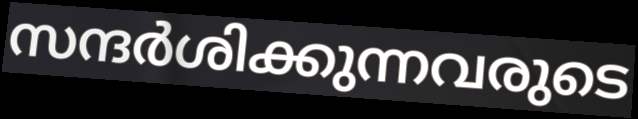
സന്ദർശിക്കുന്നവരുടെ